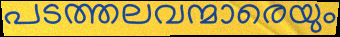
പടത്തലവന്മാരെയും